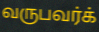
வருபவர்க்